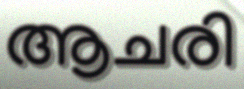
ആചരി